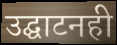
उद्घाटनही